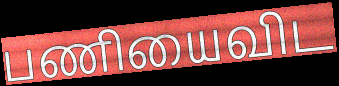
பணியைவிட